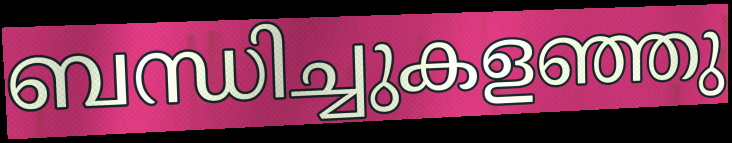
ബന്ധിച്ചുകളഞ്ഞു